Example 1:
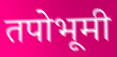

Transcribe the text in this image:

तपोभूमी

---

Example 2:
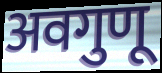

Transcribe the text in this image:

अवगुणू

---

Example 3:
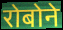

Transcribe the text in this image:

रोबोने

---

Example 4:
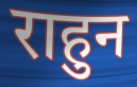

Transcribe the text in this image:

राहुन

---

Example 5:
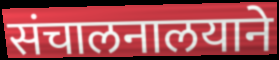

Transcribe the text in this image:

संचालनालयाने